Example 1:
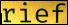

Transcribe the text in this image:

rief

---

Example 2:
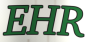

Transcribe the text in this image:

EHR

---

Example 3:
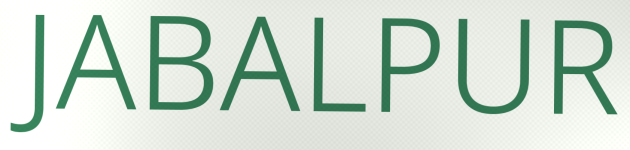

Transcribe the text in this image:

JABALPUR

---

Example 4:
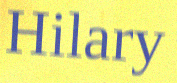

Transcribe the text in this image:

Hilary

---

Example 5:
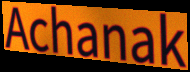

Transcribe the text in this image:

Achanak